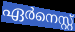
ഏർനെസ്റ്റ്